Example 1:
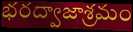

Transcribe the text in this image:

భరద్వాజాశ్రమం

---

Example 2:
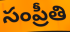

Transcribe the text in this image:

సంప్రీతి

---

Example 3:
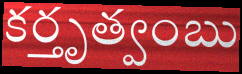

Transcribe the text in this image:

కర్తృత్వంబు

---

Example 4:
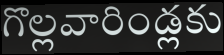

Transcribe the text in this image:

గొల్లవారిండ్లకు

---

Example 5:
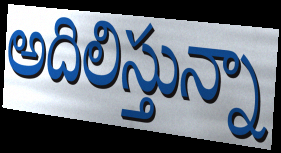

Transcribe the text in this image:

అదిలిస్తున్నా